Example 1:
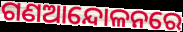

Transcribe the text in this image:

ଗଣଆନ୍ଦୋଳନରେ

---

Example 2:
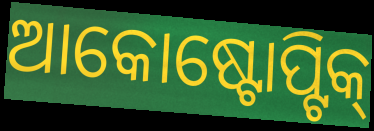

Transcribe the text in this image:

ଆକୋଷ୍ଟୋପ୍ଟିକ୍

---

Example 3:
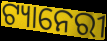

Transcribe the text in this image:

ଟ୍ୟାନେରୀ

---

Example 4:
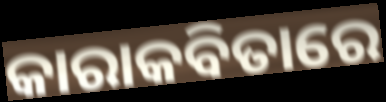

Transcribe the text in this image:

କାରାକବିତାରେ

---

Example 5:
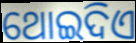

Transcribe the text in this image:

ଥୋଇଦିଏ